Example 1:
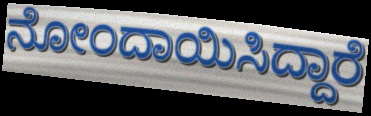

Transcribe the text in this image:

ನೋಂದಾಯಿಸಿದ್ದಾರೆ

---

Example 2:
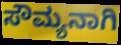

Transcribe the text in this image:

ಸೌಮ್ಯನಾಗಿ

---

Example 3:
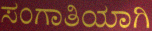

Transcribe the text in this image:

ಸಂಗಾತಿಯಾಗಿ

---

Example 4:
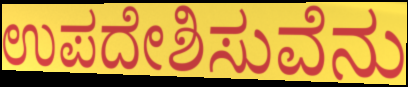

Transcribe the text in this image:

ಉಪದೇಶಿಸುವೆನು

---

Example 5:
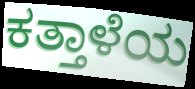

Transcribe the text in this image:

ಕತ್ತಾಳೆಯ